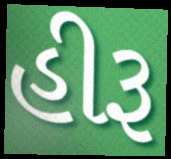
હીરૂ